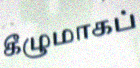
கீழுமாகப்